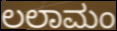
ಲಲಾಮಂ